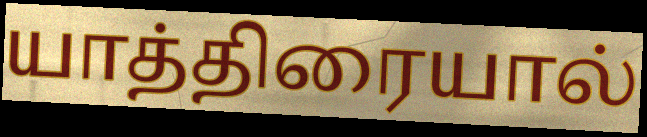
யாத்திரையால்